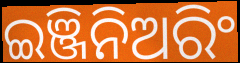
ଇଞ୍ଜିନିଅରିଂ